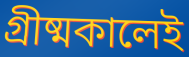
গ্রীষ্মকালেই